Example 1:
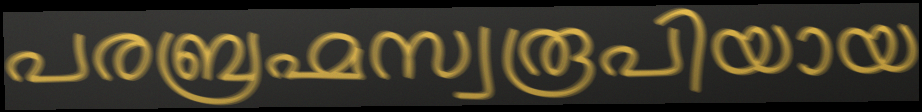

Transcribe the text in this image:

പരബ്രഹ്മസ്വരൂപിയായ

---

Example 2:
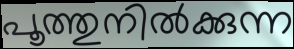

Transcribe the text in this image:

പൂത്തുനിൽക്കുന്ന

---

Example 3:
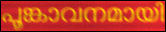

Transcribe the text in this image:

പൂങ്കാവനമായി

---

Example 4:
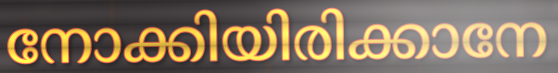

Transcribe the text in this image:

നോക്കിയിരിക്കാനേ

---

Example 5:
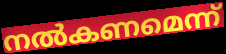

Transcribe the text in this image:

നൽകണമെന്ന്